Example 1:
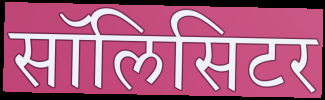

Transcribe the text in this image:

सॉलिसिटर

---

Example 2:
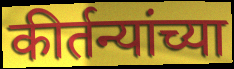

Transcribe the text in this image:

कीर्तन्यांच्या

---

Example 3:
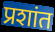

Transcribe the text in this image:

प्रशांत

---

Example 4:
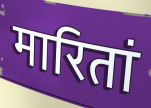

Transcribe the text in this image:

मारितां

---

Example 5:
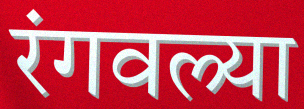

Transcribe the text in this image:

रंगवल्या